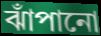
ঝাঁপানো